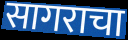
सागराचा